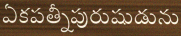
ఏకపత్నీపురుషుడును